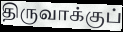
திருவாக்குப்